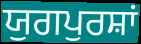
ਯੁਗਪੁਰਸ਼ਾਂ